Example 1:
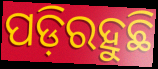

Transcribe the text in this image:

ପଡ଼ିରହୁଛି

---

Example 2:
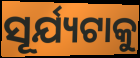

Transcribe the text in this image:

ସୂର୍ଯ୍ୟଟାକୁ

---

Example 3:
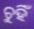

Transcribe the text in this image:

ଚୁହିଁ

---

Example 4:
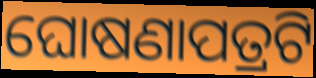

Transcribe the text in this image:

ଘୋଷଣାପତ୍ରଟି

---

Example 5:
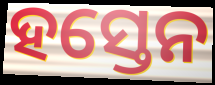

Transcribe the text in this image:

ହସ୍ତେନ